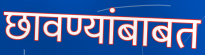
छावण्यांबाबत